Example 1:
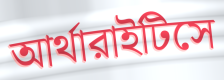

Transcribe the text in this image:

আর্থারাইটিসে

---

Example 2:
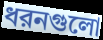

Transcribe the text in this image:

ধরনগুলো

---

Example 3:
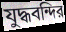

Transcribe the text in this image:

যুদ্ধবন্দির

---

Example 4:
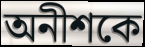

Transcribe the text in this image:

অনীশকে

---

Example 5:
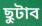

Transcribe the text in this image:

ছুটাব